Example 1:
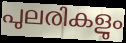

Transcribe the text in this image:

പുലരികളും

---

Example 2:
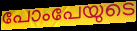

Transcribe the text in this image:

പോംപേയുടെ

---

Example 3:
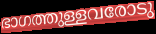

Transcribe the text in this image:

ഭാഗത്തുള്ളവരോടു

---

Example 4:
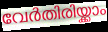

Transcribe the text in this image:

വേർതിരിയ്ക്കാം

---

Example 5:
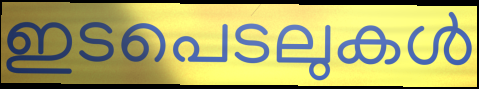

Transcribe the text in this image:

ഇടപെടലുകൾ